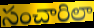
సంచారిలా